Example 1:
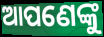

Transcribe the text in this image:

ଆପଣେଙ୍କୁ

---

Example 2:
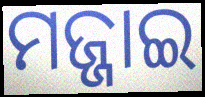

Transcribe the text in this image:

ମଜ୍ଜାଇ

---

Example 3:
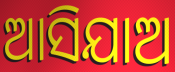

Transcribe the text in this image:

ଆସିଯାଅ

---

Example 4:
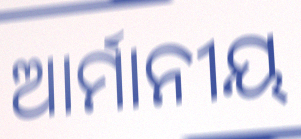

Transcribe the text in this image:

ଆର୍ମାନୀୟ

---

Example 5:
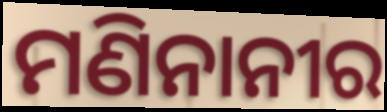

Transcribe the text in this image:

ମଣିନାନୀର